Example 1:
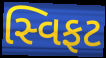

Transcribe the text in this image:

સ્વિફટ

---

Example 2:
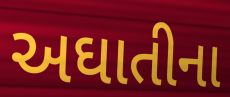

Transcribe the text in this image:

અઘાતીના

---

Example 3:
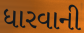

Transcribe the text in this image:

ધારવાની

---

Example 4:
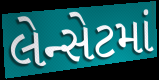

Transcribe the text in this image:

લેન્સેટમાં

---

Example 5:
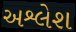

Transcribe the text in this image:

અશ્લેશ